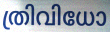
ത്രിവിധോ